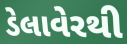
ડેલાવેરથી